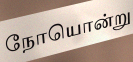
நோயொன்று